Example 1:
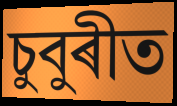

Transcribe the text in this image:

চুবুৰীত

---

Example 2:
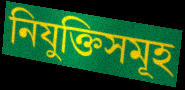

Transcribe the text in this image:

নিযুক্তিসমূহ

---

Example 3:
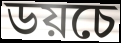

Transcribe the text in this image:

ডয়চে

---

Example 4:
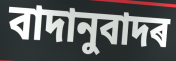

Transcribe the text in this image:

বাদানুবাদৰ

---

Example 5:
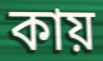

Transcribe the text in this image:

কায়